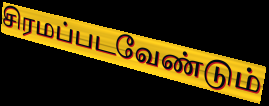
சிரமப்படவேண்டும்